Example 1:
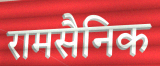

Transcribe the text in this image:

रामसैनिक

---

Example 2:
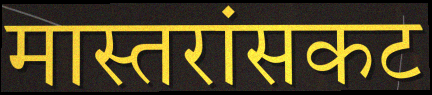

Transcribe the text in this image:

मास्तरांसकट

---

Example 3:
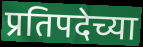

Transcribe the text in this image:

प्रतिपदेच्या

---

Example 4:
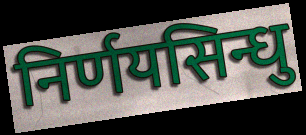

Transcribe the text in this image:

निर्णयसिन्धु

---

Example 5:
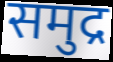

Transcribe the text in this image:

समुद्र